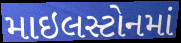
માઇલસ્ટોનમાં